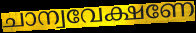
ചാന്വവേക്ഷണേ